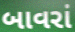
બાવરાં